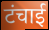
टंचाई